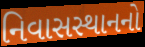
નિવાસસ્થાનનો